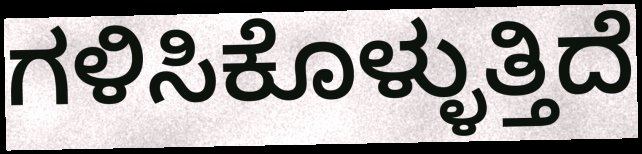
ಗಳಿಸಿಕೊಳ್ಳುತ್ತಿದೆ